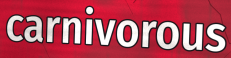
carnivorous